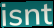
isnt